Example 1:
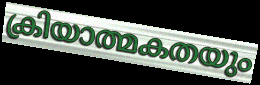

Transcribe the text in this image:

ക്രിയാത്മകതയും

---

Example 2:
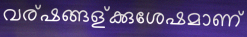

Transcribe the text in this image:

വര്ഷങ്ങള്ക്കുശേഷമാണ്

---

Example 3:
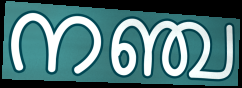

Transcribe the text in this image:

നഞ്ച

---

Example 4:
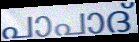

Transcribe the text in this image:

പാപാദ്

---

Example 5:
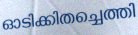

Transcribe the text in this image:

ഓടിക്കിതച്ചെത്തി